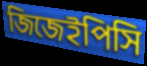
জিজেইপিসি